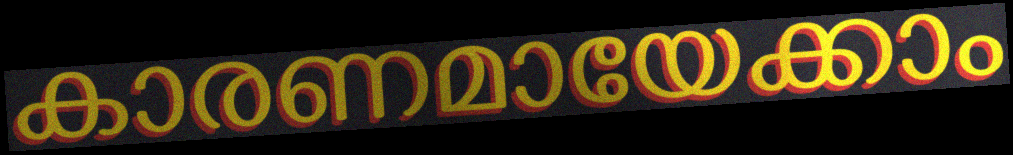
കാരണമായേക്കാം